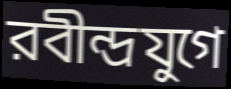
রবীন্দ্রযুগে